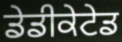
ਡੇਡੀਕੇਟੇਡ